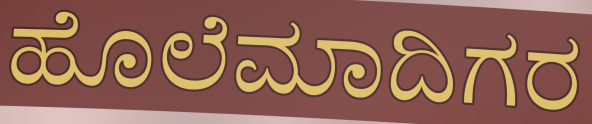
ಹೊಲೆಮಾದಿಗರ